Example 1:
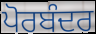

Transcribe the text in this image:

ਪੋਰਬੰਦਰ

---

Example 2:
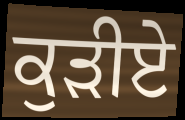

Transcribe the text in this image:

ਕੁੜੀਏ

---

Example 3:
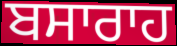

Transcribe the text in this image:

ਬਸਾਰਾਹ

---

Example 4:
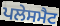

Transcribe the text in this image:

ਪਲੇਸਮੈਟ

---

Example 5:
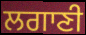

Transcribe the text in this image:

ਲਗਾਣੀ